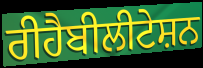
ਰੀਹੈਬੀਲੀਟੇਸ਼ਨ